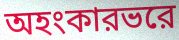
অহংকারভরে